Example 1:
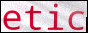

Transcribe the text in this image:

etic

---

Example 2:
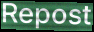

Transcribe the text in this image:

Repost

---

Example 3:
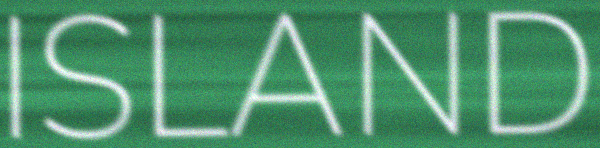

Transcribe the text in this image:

ISLAND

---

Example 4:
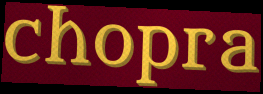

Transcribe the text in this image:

chopra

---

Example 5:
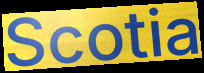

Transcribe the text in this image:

Scotia